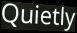
Quietly